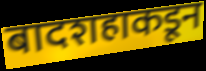
बादशहाकडून